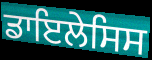
ਡਾਇਲੇਸਿਸ